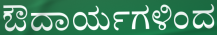
ಔದಾರ್ಯಗಳಿಂದ